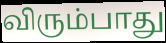
விரும்பாது